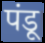
पंडू